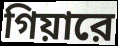
গিয়ারে